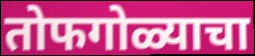
तोफगोळ्याचा